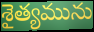
శైత్యమును